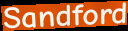
Sandford